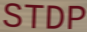
STDP